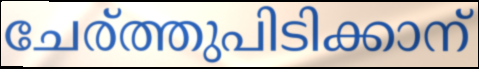
ചേര്ത്തുപിടിക്കാന്